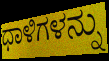
ಧಾಳಿಗಳನ್ನು